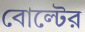
বোল্টের